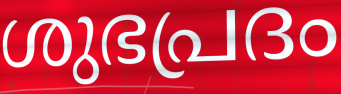
ശുഭപ്രദം